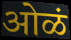
ओळं